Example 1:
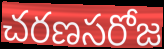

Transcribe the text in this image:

చరణసరోజ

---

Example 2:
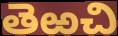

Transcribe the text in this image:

తెఱచి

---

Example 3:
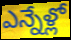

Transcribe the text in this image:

ఎన్నేళ్లో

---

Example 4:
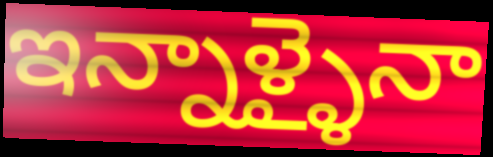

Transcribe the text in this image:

ఇన్నాళ్ళైనా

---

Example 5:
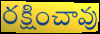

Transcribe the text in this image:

రక్షించావు